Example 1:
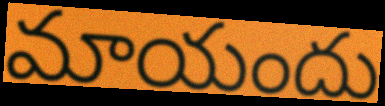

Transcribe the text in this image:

మాయందు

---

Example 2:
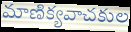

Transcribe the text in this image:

మాణిక్యవాచకుల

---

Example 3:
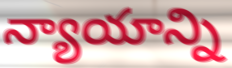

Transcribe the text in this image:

న్యాయాన్ని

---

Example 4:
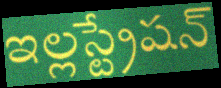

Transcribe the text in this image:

ఇల్లస్ట్రేషన్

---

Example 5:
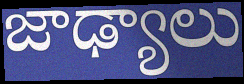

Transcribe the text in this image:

జాఢ్యాలు